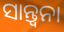
ସାନ୍ତ୍ୱନା